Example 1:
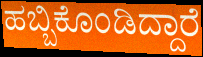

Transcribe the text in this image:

ಹಬ್ಬಿಕೊಂಡಿದ್ದಾರೆ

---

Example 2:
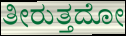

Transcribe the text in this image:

ತೀರುತ್ತದೋ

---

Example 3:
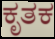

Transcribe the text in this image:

ಕೃತಕ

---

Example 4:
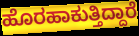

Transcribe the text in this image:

ಹೊರಹಾಕುತ್ತಿದ್ದಾರೆ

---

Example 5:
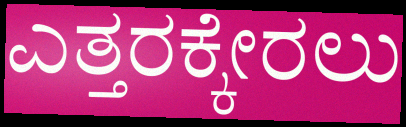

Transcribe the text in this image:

ಎತ್ತರಕ್ಕೇರಲು